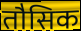
तौसिक